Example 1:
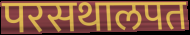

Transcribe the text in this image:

परसथालपत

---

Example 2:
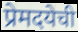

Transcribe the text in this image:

प्रेमदयेची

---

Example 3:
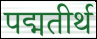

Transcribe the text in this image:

पद्मतीर्थ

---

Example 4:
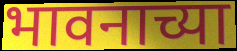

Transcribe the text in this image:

भावनाच्या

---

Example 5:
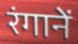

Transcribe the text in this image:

रंगानें